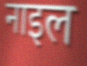
नाइल